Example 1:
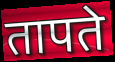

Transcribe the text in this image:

तापते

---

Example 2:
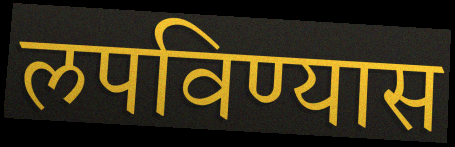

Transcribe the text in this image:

लपविण्यास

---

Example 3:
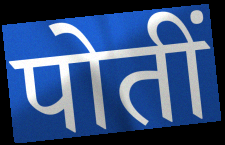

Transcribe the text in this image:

पोतीं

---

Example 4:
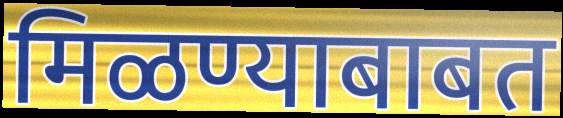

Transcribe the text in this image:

मिळण्याबाबत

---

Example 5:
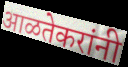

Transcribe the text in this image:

आळतेकरांनी